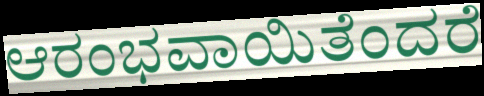
ಆರಂಭವಾಯಿತೆಂದರೆ